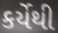
કર્યેથી